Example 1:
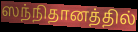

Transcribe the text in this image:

ஸந்நிதானத்தில்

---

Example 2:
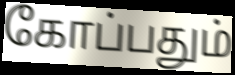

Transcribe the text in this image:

கோப்பதும்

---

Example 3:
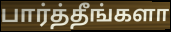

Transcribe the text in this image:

பார்த்தீங்களா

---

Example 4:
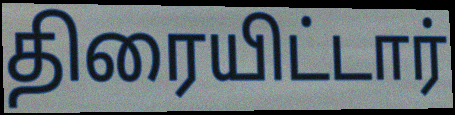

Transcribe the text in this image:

திரையிட்டார்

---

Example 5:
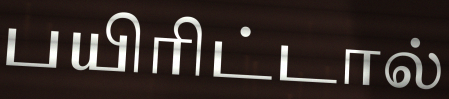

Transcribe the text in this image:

பயிரிட்டால்